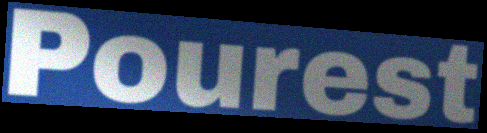
Pourest